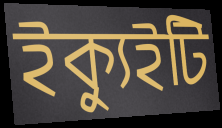
ইক্যুইটি